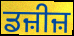
ਡਜ਼ੀਜ਼